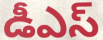
డీఎస్